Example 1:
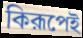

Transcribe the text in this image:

কিরূপেই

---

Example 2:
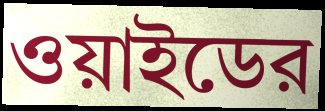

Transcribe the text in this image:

ওয়াইডের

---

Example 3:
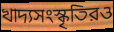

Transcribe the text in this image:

খাদ্যসংস্কৃতিরও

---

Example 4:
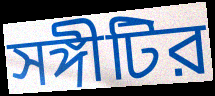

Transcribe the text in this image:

সঙ্গীটির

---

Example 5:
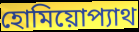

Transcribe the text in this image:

হোমিয়োপ্যাথ